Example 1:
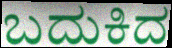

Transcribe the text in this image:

ಬದುಕಿದ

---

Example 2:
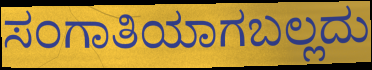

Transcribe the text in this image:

ಸಂಗಾತಿಯಾಗಬಲ್ಲದು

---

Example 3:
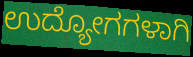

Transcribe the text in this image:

ಉದ್ಯೋಗಗಳಾಗಿ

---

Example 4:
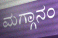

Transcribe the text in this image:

ಮಗ್ಗಾನಂ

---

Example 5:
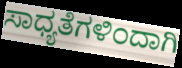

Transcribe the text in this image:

ಸಾಧ್ಯತೆಗಳಿಂದಾಗಿ